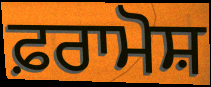
ਫ਼ਰਾਮੋਸ਼